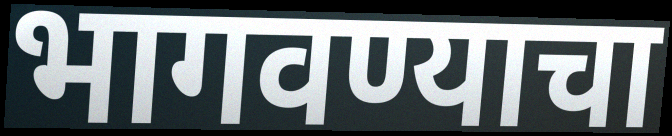
भागवण्याचा